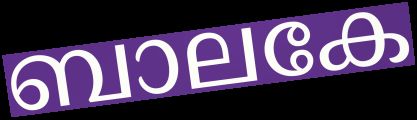
ബാലകേ